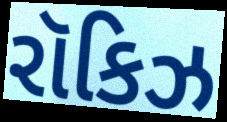
રૉકિઝ